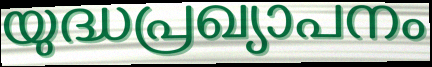
യുദ്ധപ്രഖ്യാപനം